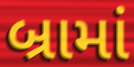
બ્રામાં